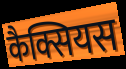
कैक्सियस